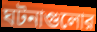
ঘটনাগুলোর